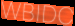
WBIDC